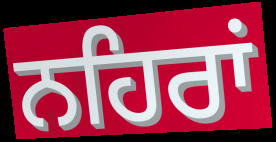
ਨਹਿਰਾਂ